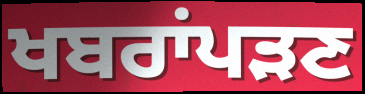
ਖਬਰਾਂਪੜਣ